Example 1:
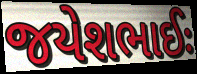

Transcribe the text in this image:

જયેશભાઈઃ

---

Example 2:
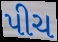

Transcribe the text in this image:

પીચ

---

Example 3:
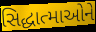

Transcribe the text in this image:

સિદ્ધાત્માઓને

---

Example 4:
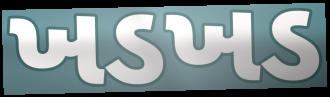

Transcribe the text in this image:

ખડખડ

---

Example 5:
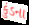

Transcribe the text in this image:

કુંડના